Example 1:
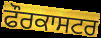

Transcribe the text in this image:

ਫੌਰਕਾਸਟਰ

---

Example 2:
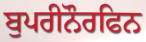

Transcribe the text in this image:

ਬੁਪਰੀਨੌਰਫਿਨ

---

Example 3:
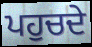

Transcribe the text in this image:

ਪਹੁਚਦੇ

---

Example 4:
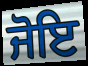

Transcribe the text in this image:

ਜੋਇ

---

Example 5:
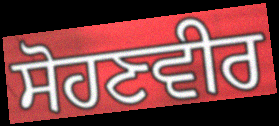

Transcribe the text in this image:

ਸੋਹਣਵੀਰ